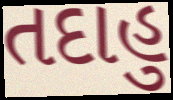
તદાહુ